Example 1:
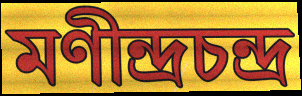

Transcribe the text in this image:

মণীন্দ্রচন্দ্র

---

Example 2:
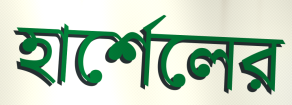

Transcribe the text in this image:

হার্শেলের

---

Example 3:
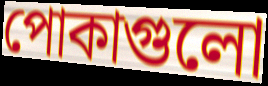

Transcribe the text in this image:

পোকাগুলো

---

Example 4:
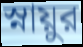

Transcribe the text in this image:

স্নায়ুর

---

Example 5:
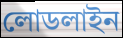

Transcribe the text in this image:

লোডলাইন